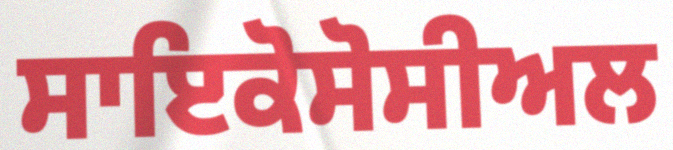
ਸਾਇਕੋਸੋਸੀਅਲ